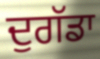
ਦੁਗੱਡਾ